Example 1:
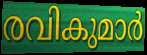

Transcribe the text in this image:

രവികുമാർ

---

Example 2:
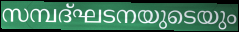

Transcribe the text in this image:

സമ്പദ്ഘടനയുടെയും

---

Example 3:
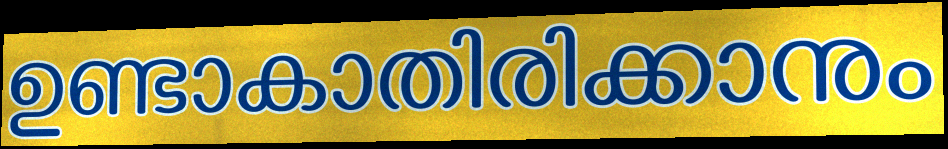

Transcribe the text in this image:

ഉണ്ടാകാതിരിക്കാനും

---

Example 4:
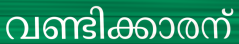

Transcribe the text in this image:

വണ്ടിക്കാരന്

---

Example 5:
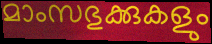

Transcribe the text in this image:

മാംസഭുക്കുകളും